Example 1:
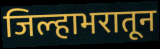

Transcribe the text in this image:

जिल्हाभरातून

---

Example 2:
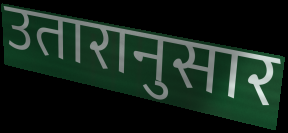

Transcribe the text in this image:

उतारानुसार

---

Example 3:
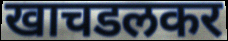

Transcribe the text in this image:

खाचडलकर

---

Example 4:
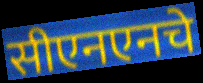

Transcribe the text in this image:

सीएनएनचे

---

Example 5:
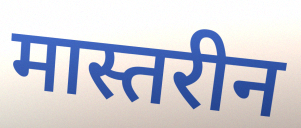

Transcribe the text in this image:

मास्तरीन